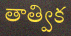
తాత్విక